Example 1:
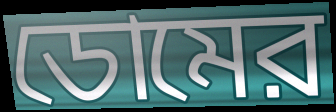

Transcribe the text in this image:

ডোমের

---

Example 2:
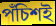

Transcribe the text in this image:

পঁচিশই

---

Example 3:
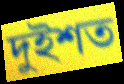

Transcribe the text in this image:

দুইশত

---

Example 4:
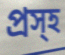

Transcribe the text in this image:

প্রস্হ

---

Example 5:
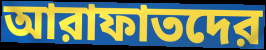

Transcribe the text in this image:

আরাফাতদের